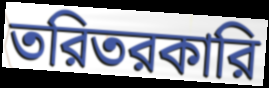
তরিতরকারি